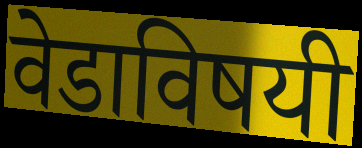
वेडाविषयी